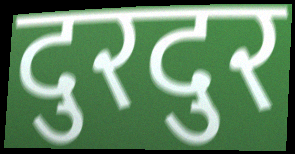
दुरदुर